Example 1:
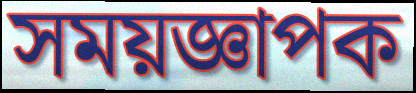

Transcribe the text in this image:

সময়জ্ঞাপক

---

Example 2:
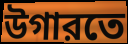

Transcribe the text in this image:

উগারতে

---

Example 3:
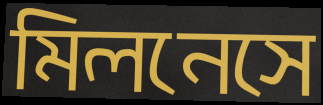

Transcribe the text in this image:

মিলনেসে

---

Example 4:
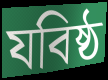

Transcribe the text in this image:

যবিষ্ঠ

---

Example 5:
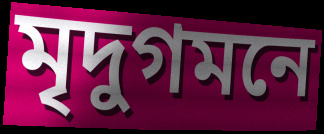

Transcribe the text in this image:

মৃদুগমনে